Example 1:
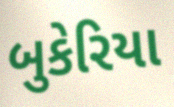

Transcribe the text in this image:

બુકેરિયા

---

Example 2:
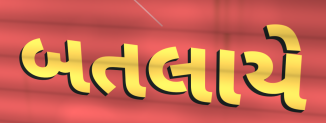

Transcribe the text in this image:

બતલાયે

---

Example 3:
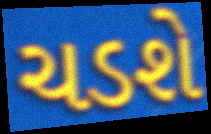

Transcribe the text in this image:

ચડશે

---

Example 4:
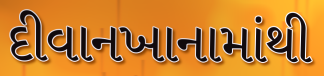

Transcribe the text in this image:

દીવાનખાનામાંથી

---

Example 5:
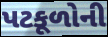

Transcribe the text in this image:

પટકૂળોની